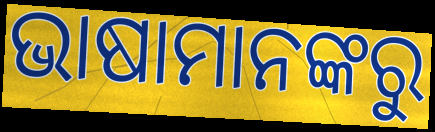
ଭାଷାମାନଙ୍କରୁ